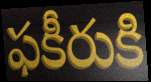
ఫకీరుకి